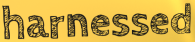
harnessed